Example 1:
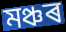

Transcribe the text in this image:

মঞ্চৰ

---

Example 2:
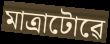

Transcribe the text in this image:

মাত্ৰাটোৱে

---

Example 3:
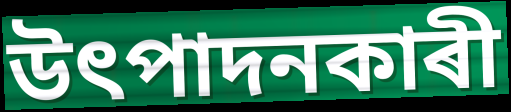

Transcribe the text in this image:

উৎপাদনকাৰী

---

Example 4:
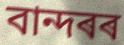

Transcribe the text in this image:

বান্দৰৰ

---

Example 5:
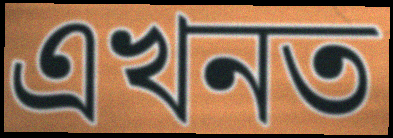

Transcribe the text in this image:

এখনত